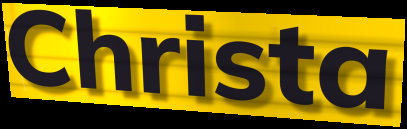
Christa